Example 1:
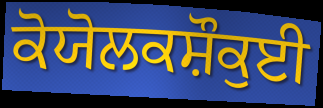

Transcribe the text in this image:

ਕੋਯੋਲਕਸ਼ੌਕੁਈ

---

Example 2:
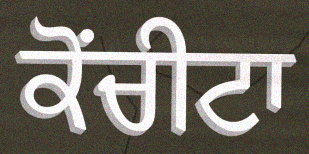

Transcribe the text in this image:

ਕੋਂਚੀਟਾ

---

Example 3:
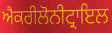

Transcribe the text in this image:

ਐਕਰੀਲੋਨੀਟ੍ਰਾਇਲ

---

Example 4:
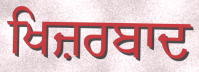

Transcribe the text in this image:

ਖਿਜ਼ਰਬਾਦ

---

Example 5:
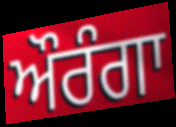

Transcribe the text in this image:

ਔਰੰਗਾ